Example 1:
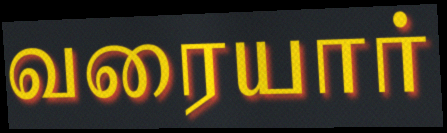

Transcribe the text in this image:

வரையார்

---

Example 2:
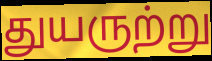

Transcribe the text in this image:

துயருற்று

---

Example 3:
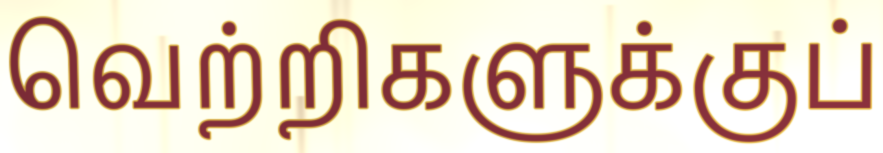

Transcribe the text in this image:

வெற்றிகளுக்குப்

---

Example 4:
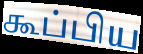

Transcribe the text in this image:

கூப்பிய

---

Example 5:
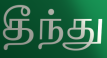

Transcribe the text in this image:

தீந்து